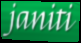
janiti